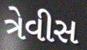
ત્રેવીસ